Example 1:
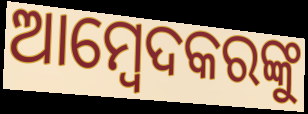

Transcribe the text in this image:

ଆମ୍ବେଦକରଙ୍କୁ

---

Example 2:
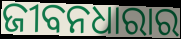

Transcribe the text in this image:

ଜୀବନଧାରାର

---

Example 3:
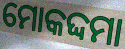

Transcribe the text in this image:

ମୋକଦ୍ଦମା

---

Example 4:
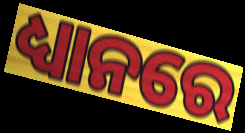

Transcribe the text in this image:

ଧ୍ୟାନରେ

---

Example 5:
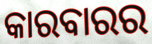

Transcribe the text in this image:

କାରବାରର